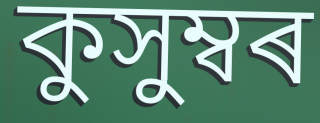
কুসুম্বৰ